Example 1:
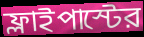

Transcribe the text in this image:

ফ্লাইপাস্টের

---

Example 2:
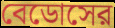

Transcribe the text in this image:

বেডোসের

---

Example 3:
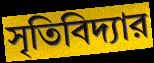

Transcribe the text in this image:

সৃতিবিদ্যার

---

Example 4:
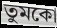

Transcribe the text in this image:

তুমকো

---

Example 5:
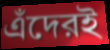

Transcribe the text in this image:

এঁদেরই